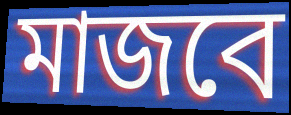
মাজবে